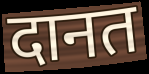
दानत